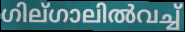
ഗില്ഗാലിൽവച്ച്